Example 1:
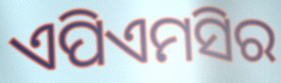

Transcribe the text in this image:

ଏପିଏମସିର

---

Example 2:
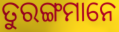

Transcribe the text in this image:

ତୁରଙ୍ଗମାନେ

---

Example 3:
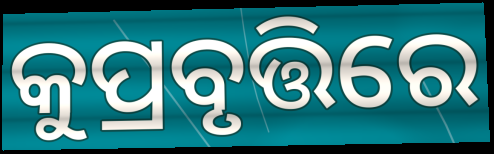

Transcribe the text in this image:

କୁପ୍ରବୃତ୍ତିରେ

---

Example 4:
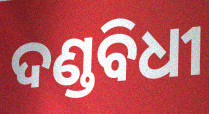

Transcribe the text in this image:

ଦଣ୍ଡବିଧୀ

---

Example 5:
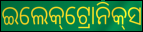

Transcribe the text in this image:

ଇଲେକ୍‌ଟ୍ରୋନିକ୍‌ସ